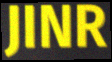
JINR